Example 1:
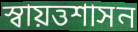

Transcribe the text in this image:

স্বায়ত্তশাসন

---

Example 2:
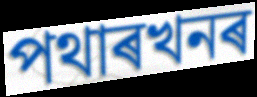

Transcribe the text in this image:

পথাৰখনৰ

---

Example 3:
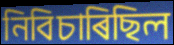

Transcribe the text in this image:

নিবিচাৰিছিল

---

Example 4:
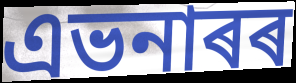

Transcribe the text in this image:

এভনাৰৰ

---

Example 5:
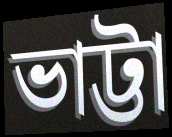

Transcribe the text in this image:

ভাট্টা